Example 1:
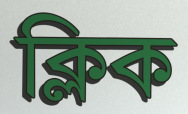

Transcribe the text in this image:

ক্লিক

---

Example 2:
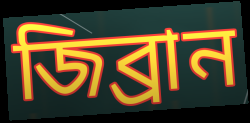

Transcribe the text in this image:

জিব্রান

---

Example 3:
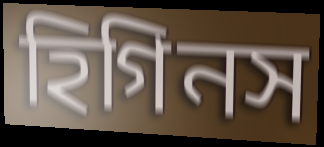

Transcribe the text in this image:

হিগিনস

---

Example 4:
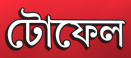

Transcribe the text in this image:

টোফেল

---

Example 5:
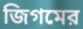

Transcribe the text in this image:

জিগমের